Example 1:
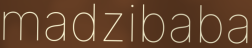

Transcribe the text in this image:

madzibaba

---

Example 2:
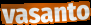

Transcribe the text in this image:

vasanto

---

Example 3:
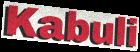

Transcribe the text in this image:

Kabuli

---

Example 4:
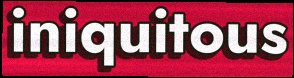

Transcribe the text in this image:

iniquitous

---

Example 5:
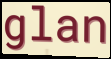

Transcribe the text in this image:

glan